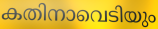
കതിനാവെടിയും